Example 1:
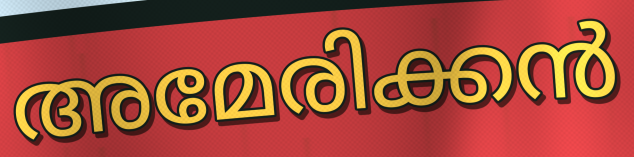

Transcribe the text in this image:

അമേരിക്കൻ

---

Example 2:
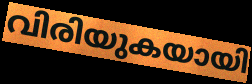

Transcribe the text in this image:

വിരിയുകയായി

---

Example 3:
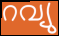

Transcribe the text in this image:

റവ്യു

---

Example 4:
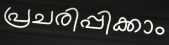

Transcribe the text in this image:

പ്രചരിപ്പിക്കാം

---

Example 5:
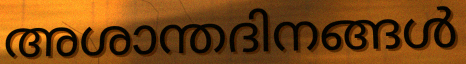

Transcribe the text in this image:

അശാന്തദിനങ്ങൾ